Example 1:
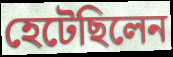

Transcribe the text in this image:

হেটেছিলেন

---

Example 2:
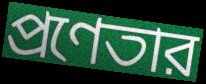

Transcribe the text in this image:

প্রণেতার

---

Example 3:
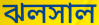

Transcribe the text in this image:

ঝলসাল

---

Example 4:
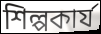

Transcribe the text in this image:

শিল্পকার্য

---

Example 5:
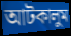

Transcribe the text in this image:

আটকালুম